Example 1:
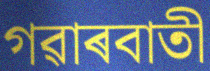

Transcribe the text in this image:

গৱাৰবাতী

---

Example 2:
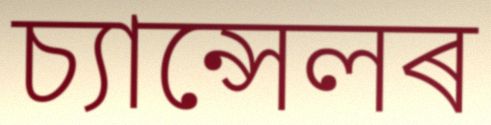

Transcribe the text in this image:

চ্যান্সেলৰ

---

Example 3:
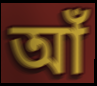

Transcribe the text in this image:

আঁ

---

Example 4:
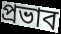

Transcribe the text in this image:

প্ৰভাব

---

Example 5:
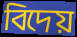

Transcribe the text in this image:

বিদেয়